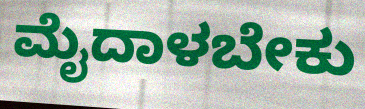
ಮೈದಾಳಬೇಕು